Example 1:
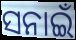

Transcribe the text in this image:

ସନାଇଁ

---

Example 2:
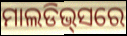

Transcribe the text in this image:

ମାଲଡିଭ୍‌ସରେ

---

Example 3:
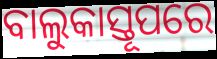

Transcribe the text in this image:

ବାଲୁକାସ୍ତୂପରେ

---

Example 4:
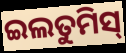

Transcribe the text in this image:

ଇଲତୁମିସ୍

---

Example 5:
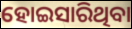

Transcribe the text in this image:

ହୋଇସାରିଥିବା